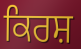
ਕਿਰਸ਼